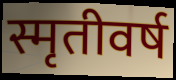
स्मृतीवर्ष